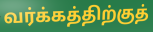
வர்க்கத்திற்குத்